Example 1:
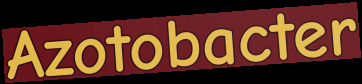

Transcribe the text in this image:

Azotobacter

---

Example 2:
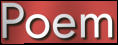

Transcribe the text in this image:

Poem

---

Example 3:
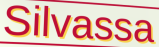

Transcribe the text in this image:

Silvassa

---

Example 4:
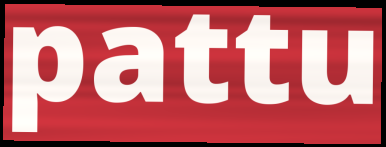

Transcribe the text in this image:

pattu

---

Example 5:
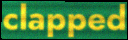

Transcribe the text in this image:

clapped